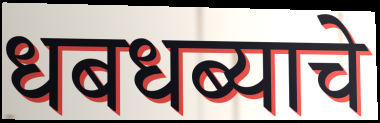
धबधब्याचे